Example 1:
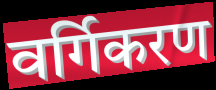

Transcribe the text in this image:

वर्गिकरण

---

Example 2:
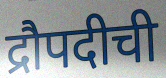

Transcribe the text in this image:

द्रौपदीची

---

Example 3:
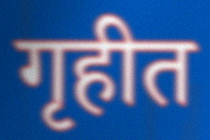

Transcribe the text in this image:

गृहीत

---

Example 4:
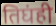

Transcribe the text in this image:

तिघंही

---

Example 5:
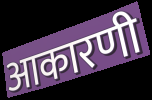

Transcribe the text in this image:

आकारणी